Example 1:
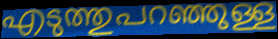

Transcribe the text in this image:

എടുത്തുപറഞ്ഞുള്ള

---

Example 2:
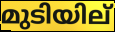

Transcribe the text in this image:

മുടിയില്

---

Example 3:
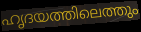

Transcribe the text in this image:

ഹൃദയത്തിലെത്തും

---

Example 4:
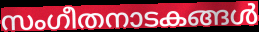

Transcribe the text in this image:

സംഗീതനാടകങ്ങൾ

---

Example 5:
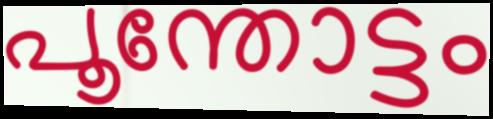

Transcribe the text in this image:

പൂന്തോട്ടം